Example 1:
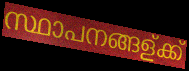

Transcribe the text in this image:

സ്ഥാപനങ്ങള്ക്ക്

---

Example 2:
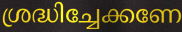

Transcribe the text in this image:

ശ്രദ്ധിച്ചേക്കണേ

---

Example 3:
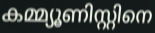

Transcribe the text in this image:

കമ്മ്യൂണിസ്റ്റിനെ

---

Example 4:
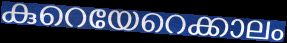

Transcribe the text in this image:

കുറെയേറെക്കാലം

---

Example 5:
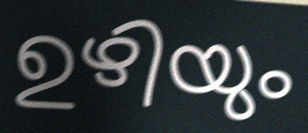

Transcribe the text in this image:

ഉഴിയും